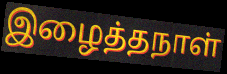
இழைத்தநாள்